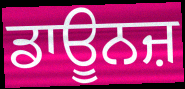
ਡਾਊਨਜ਼